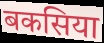
बकसिया